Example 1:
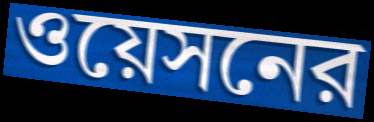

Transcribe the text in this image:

ওয়েসনের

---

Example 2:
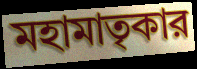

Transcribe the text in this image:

মহামাতৃকার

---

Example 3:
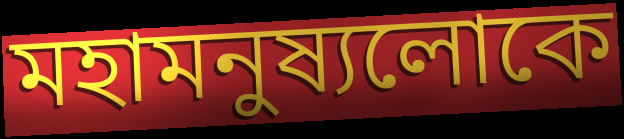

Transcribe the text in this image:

মহামনুষ্যলোকে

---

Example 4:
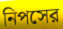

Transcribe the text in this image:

নিপসের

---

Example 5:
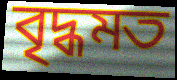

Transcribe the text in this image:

বৃদ্ধমত